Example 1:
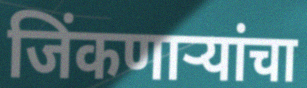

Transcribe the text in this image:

जिंकणाऱ्यांचा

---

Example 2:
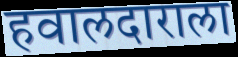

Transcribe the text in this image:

हवालदाराला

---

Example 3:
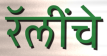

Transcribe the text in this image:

रॅलींचे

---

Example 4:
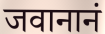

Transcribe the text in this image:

जवानानं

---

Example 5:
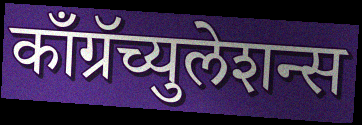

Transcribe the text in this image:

काँग्रॅच्युलेशन्स